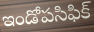
ఇండోపసిఫిక్